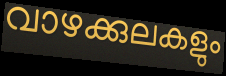
വാഴക്കുലകളും